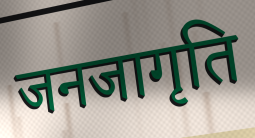
जनजागृति